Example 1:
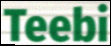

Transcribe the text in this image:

Teebi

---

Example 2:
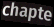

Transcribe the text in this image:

chapte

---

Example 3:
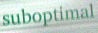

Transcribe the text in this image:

suboptimal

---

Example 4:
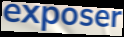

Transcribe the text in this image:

exposer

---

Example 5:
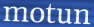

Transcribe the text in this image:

motun